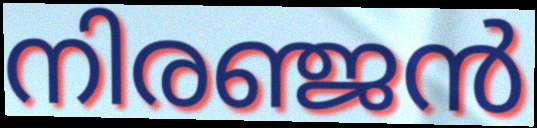
നിരഞ്ജൻ